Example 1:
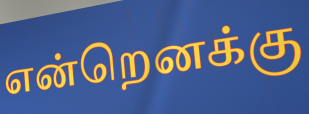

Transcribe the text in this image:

என்றெனக்கு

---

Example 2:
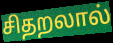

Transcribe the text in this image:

சிதறலால்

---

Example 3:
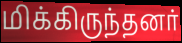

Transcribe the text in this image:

மிக்கிருந்தனர்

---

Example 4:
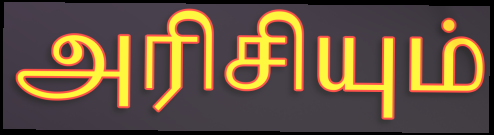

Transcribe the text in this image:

அரிசியும்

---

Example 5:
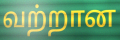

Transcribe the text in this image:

வற்றான